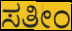
ಸತೀಂ